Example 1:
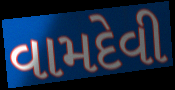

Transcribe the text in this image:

વામદેવી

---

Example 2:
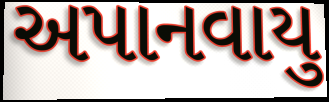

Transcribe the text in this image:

અપાનવાયુ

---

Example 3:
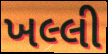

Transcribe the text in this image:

ખલ્લી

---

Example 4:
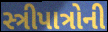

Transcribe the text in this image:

સ્ત્રીપાત્રોની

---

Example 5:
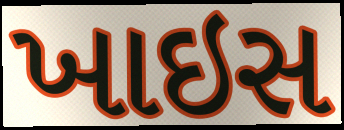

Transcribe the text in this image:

ખાઇસ